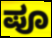
ಪೂ